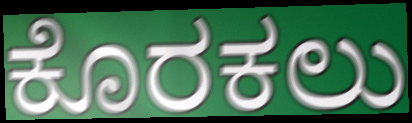
ಕೊರಕಲು